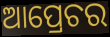
ଆପ୍ରେଚର